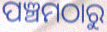
ପଞ୍ଚମଠାରୁ